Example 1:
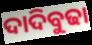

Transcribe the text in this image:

ଦାଦିବୁଢା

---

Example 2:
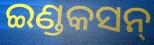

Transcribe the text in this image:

ଇଣ୍ଡକସନ୍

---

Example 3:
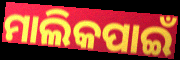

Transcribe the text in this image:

ମାଲିକପାଇଁ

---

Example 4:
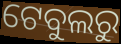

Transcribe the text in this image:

ଟେବୁଲରୁ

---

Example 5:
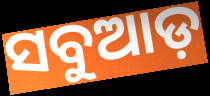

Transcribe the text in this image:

ସବୁଆଡ଼